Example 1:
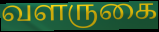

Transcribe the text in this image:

வளருகை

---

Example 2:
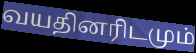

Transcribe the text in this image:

வயதினரிடமும்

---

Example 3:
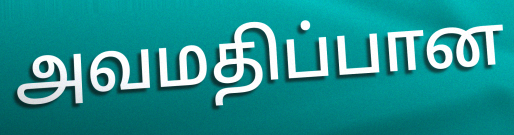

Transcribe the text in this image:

அவமதிப்பான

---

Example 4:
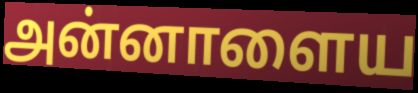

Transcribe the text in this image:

அன்னாளைய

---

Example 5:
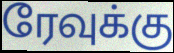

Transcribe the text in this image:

ரேவுக்கு